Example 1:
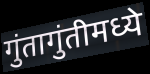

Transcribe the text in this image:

गुंतागुंतीमध्ये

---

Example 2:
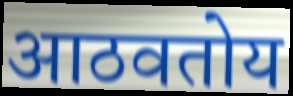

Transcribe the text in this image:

आठवतोय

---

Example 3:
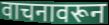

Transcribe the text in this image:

वाचनावरून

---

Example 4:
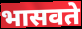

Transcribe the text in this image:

भासवते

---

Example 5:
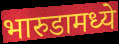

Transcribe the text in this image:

भारुडामध्ये